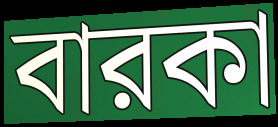
বারকা